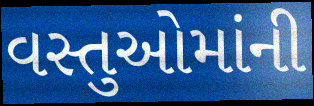
વસ્તુઓમાંની